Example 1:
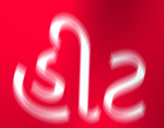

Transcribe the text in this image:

હીટ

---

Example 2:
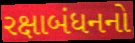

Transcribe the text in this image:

રક્ષાબંધનનો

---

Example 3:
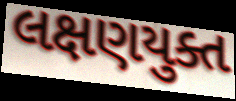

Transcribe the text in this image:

લક્ષણયુક્ત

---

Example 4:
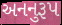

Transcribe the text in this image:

અનનુરૂપ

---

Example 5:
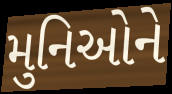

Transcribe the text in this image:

મુનિઓને